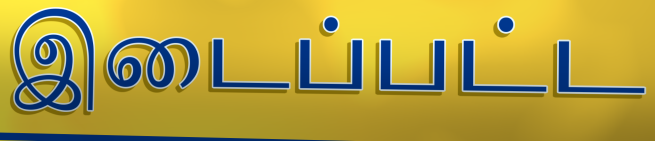
இடைப்பட்ட